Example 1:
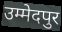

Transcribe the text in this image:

उम्मेदपुर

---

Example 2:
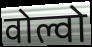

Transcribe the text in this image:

वोल्वो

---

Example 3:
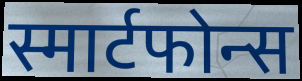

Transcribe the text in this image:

स्मार्टफोन्स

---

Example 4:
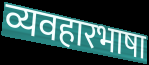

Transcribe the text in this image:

व्यवहारभाषा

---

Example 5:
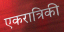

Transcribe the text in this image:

एकरात्रिकी